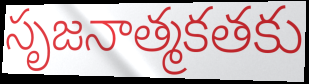
సృజనాత్మకతకు